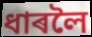
ধাৰলৈ